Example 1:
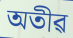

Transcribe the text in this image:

অতীৱ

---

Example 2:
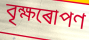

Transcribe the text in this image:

বৃক্ষৰোপণ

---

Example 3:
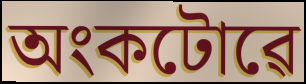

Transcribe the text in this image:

অংকটোৱে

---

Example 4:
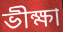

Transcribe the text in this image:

ভীক্ষা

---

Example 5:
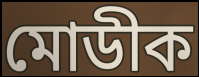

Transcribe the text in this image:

মোডীক